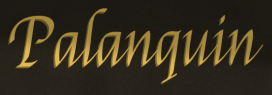
Palanquin